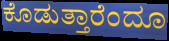
ಕೊಡುತ್ತಾರೆಂದೂ